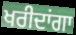
ਖਰੀਦਾਂਗਾ